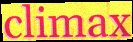
climax